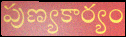
పుణ్యకార్యం